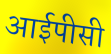
आईपीसी